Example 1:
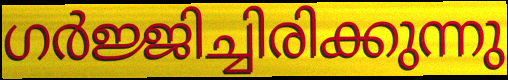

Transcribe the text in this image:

ഗർജ്ജിച്ചിരിക്കുന്നു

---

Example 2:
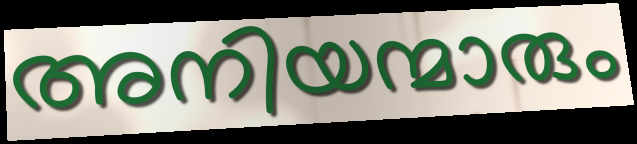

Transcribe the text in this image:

അനിയന്മാരും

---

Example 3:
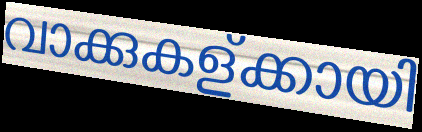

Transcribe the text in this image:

വാക്കുകള്ക്കായി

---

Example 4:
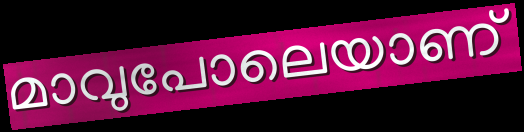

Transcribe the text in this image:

മാവുപോലെയാണ്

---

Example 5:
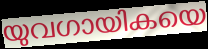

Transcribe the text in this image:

യുവഗായികയെ